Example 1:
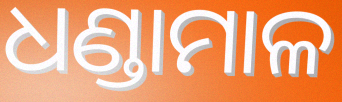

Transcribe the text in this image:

ଧଣ୍ଡାମାଳ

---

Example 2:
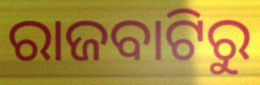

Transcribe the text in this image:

ରାଜବାଟିରୁ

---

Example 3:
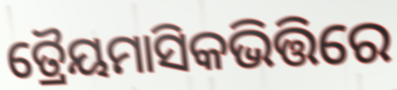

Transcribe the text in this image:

ତ୍ରୈୟମାସିକଭିତ୍ତିରେ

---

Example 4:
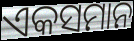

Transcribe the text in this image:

ଏକସମାନ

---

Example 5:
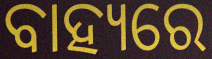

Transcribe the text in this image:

ବାହ୍ୟରେ